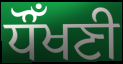
ਧੌਁਖਣੀ